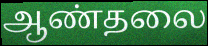
ஆண்தலை